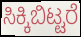
ಸಿಕ್ಕಿಬಿಟ್ಟರೆ